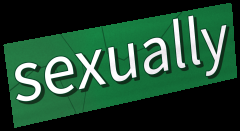
sexually